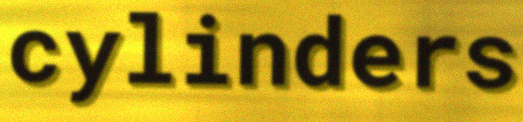
cylinders